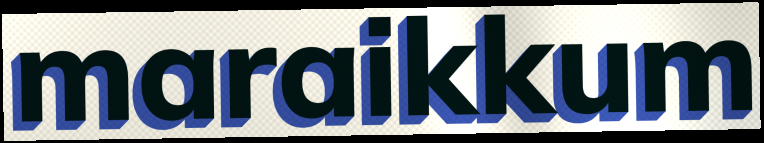
maraikkum